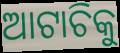
ଆଟାଚିକୁ